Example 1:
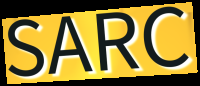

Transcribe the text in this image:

SARC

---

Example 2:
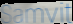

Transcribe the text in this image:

Samvit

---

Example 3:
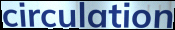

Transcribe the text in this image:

circulation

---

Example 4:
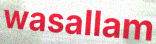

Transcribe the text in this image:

wasallam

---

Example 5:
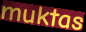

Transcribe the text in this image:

muktas